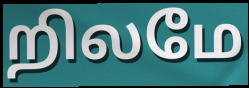
றிலமே